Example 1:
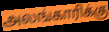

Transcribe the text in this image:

அலங்காரிக்கு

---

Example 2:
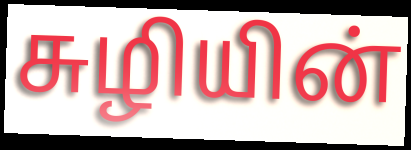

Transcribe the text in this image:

சுழியின்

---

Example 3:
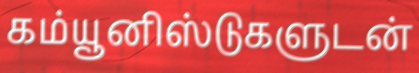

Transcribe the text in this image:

கம்யூனிஸ்டுகளுடன்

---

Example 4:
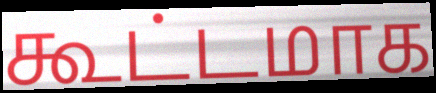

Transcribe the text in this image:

கூட்டமாக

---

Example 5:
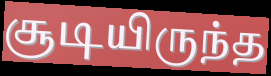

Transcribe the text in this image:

சூடியிருந்த